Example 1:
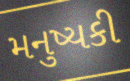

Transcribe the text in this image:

મનુષ્યકી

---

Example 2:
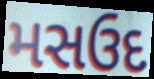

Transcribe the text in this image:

મસઉદ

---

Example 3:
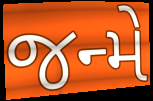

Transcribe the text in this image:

જન્મે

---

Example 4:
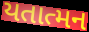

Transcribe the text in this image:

યતાત્મન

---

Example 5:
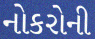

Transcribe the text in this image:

નોકરોની